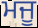
ਮਜੂ